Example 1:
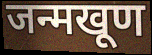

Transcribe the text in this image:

जन्मखूण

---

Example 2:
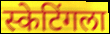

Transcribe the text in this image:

स्केटिंगला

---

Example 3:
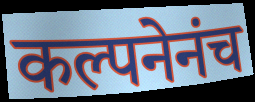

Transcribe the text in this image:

कल्पनेनंच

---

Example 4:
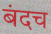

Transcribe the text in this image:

बंदच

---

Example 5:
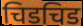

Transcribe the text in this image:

चिडचिड